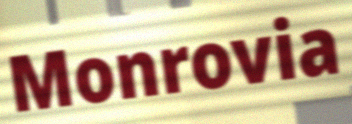
Monrovia